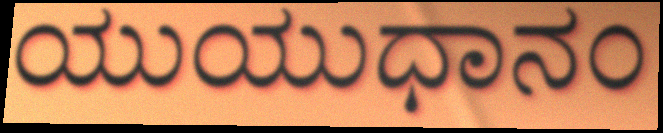
ಯುಯುಧಾನಂ